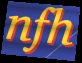
nfh